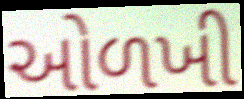
ઓળખી